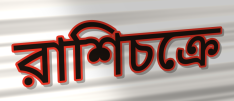
রাশিচক্রে